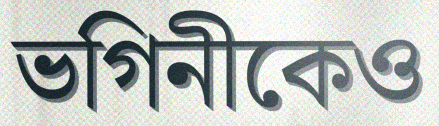
ভগিনীকেও